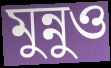
মুন্নুও